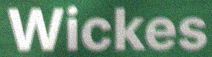
Wickes